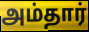
அம்தார்